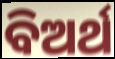
ବିଅର୍ଥ